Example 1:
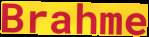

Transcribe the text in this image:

Brahme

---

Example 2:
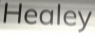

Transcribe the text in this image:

Healey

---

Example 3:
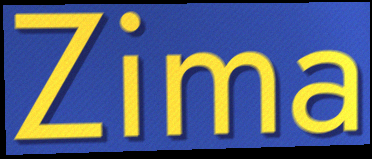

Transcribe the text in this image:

Zima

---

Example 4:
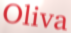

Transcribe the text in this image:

Oliva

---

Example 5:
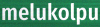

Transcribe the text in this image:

melukolpu